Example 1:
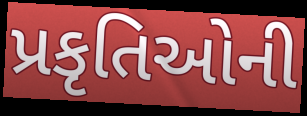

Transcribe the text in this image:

પ્રકૃતિઓની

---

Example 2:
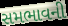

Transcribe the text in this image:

સમભાવની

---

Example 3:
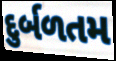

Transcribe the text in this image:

દુર્બળતમ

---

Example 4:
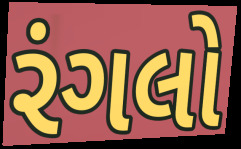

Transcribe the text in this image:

રંગલો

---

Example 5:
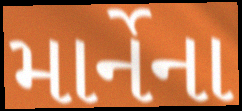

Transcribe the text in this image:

માર્નેના